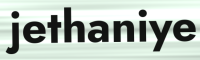
jethaniye